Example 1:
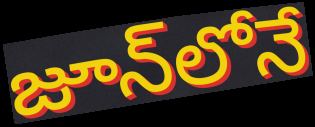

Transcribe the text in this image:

జూన్‌లోనే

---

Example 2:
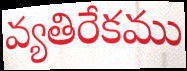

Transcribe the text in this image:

వ్యతిరేకము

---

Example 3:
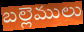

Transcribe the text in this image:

బల్లెములు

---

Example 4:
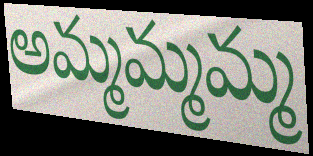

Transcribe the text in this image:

అమ్మమ్మమ్మ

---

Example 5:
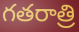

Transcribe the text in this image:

గతరాత్రి